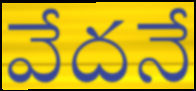
వేదనే